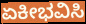
ಏಕೀಭವಿಸಿ